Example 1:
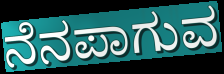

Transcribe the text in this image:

ನೆನಪಾಗುವ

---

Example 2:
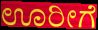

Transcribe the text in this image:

ಊರೀಗೆ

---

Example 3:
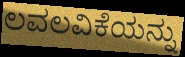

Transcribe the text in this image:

ಲವಲವಿಕೆಯನ್ನು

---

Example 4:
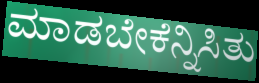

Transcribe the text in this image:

ಮಾಡಬೇಕೆನ್ನಿಸಿತು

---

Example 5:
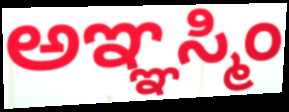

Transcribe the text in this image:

ಅಞ್ಞಸ್ಮಿಂ